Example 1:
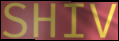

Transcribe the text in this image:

SHIV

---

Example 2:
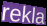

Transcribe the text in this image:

rekla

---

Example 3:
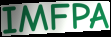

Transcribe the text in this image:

IMFPA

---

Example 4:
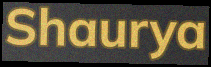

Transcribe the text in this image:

Shaurya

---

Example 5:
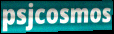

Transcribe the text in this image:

psjcosmos